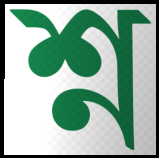
শ্ন